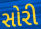
સોરી